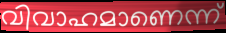
വിവാഹമാണെന്ന്